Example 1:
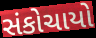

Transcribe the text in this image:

સંકોચાયો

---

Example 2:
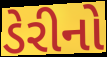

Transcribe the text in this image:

ડેરીનો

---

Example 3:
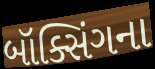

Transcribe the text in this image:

બૉક્સિંગના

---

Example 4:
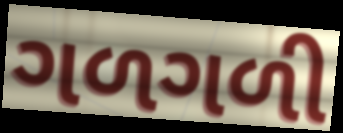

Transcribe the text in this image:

ગળગળી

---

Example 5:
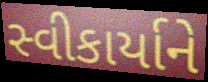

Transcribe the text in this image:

સ્વીકાર્યાને